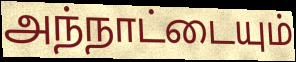
அந்நாட்டையும்